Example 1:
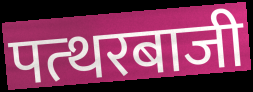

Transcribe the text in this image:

पत्‍थरबाजी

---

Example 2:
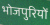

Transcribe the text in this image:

भोजपुरियों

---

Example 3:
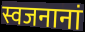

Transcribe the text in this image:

स्वजनानां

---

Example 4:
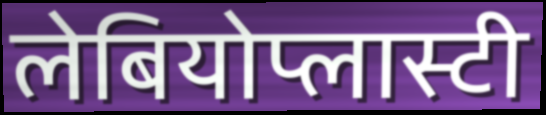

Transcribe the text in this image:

लेबियोप्लास्टी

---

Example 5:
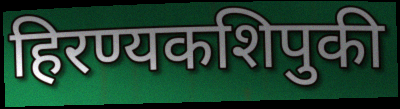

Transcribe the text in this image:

हिरण्यकशिपुकी